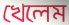
খেলেম